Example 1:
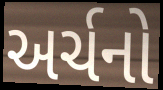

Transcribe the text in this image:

અર્ચનો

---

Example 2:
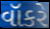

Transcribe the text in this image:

વૉકરે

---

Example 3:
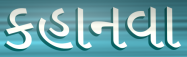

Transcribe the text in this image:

કહાનવા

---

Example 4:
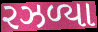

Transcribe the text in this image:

રઝળ્યા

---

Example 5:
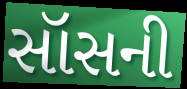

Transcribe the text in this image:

સૉસની